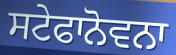
ਸਟੇਫਾਨੋਵਨਾ